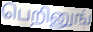
பெறினுங்